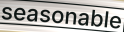
seasonable